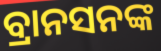
ବ୍ରାନସନଙ୍କ